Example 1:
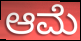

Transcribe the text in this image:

ಆಮೆ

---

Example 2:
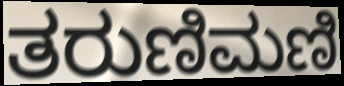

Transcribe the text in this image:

ತರುಣಿಮಣಿ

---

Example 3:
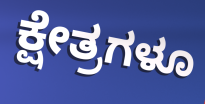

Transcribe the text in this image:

ಕ್ಷೇತ್ರಗಳೂ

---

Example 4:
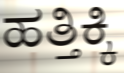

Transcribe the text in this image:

ಹತ್ತಿಕ್ಕಿ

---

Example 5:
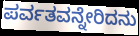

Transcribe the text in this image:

ಪರ್ವತವನ್ನೇರಿದನು